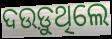
ଦଉଡ଼ୁଥିଲେ